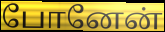
போனேன்